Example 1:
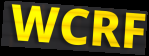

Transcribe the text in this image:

WCRF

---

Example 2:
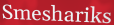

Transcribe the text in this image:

Smeshariks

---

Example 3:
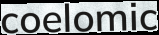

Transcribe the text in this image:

coelomic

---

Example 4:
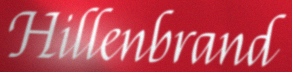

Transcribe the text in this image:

Hillenbrand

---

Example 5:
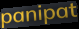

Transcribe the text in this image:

panipat